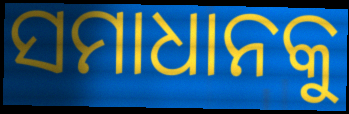
ସମାଧାନକୁ